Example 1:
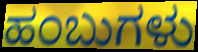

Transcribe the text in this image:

ಹಂಬುಗಳು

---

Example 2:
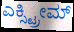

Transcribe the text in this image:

ಎಕ್ಸ್ಟ್ರೀಮ್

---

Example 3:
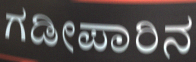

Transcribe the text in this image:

ಗಡೀಪಾರಿನ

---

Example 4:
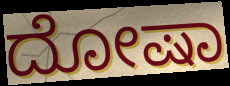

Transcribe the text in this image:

ದೋಷಾ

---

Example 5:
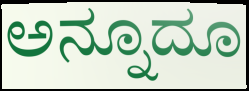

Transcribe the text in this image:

ಅನ್ನೂದೂ